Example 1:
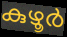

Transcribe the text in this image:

കുഴൂർ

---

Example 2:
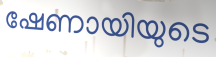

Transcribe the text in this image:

ഷേണായിയുടെ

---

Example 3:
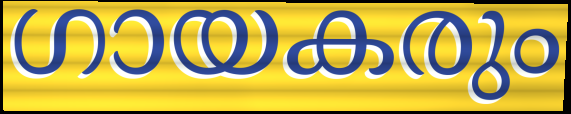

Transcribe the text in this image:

ഗായകരും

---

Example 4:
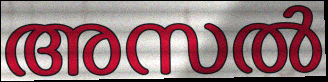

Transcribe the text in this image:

അസൽ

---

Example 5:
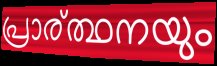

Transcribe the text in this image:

പ്രാര്ത്ഥനയും